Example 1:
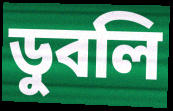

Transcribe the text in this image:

ডুবলি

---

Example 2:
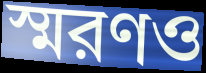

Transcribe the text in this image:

স্মরণও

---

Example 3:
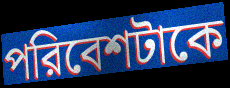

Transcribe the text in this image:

পরিবেশটাকে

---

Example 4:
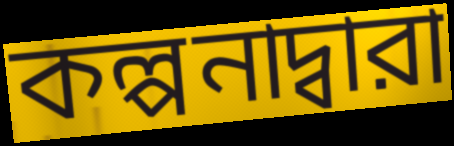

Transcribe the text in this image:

কল্পনাদ্বারা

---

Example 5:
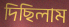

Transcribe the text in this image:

দিছিলাম